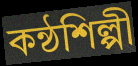
কন্ঠশিল্পী